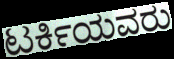
ಟರ್ಕಿಯವರು